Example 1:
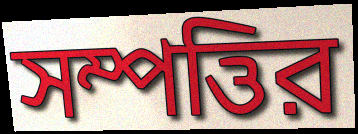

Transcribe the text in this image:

সম্পত্তির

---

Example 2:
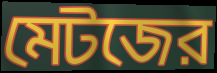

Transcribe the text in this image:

মেটজের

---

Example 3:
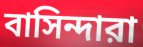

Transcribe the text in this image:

বাসিন্দারা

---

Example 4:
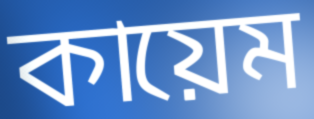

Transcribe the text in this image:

কায়েম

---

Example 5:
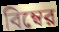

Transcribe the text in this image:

বিম্বের